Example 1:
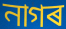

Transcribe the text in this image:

নাগৰ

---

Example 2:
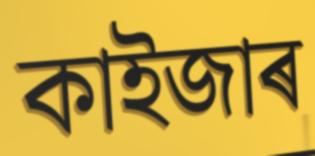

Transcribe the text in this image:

কাইজাৰ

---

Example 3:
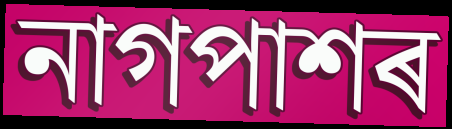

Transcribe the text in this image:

নাগপাশৰ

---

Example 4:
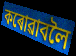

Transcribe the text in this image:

কৰোৱাবলৈ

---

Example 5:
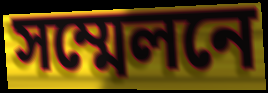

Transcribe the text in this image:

সম্মেলনে